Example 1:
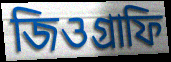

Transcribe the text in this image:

জিওগ্রাফি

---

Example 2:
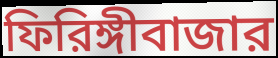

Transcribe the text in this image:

ফিরিঙ্গীবাজার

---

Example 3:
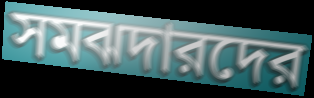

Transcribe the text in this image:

সমঝদারদের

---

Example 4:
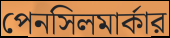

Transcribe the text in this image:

পেনসিলমার্কার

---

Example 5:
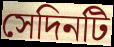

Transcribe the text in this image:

সেদিনটি